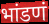
भांडणं